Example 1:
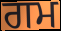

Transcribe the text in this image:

ਗਮ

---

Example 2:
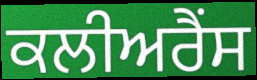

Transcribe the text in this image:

ਕਲੀਅਰੈਂਸ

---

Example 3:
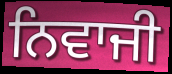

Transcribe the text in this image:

ਨਿਵਾਜੀ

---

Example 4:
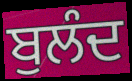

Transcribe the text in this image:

ਬੁਲੰਦ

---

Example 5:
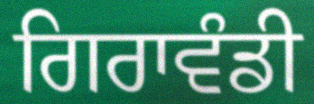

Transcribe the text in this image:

ਗਿਰਾਵੰਡੀ